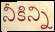
నీకిన్ని